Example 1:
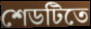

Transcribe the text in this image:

শেডটিতে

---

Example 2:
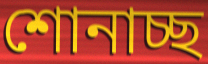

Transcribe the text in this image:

শোনাচ্ছ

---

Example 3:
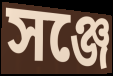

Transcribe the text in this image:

সঞ্জে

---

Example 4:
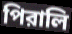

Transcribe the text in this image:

পিরালি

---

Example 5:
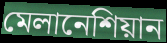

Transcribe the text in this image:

মেলানেশিয়ান